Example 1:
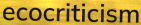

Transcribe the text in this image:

ecocriticism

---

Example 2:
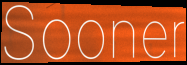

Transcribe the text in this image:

Sooner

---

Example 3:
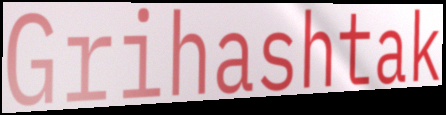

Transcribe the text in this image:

Grihashtak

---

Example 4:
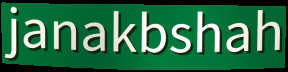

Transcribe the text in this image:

janakbshah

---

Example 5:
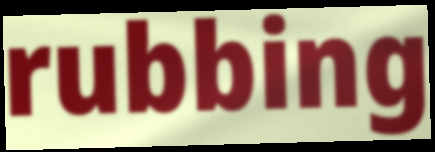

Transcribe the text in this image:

rubbing